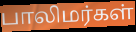
பாலிமர்கள்